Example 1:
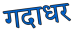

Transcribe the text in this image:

गदाधर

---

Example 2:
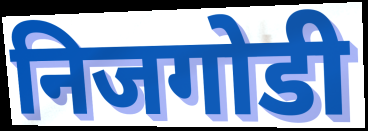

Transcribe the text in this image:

निजगोडी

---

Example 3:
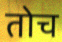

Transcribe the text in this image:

तोच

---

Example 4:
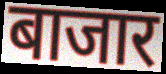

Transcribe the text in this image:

बाजार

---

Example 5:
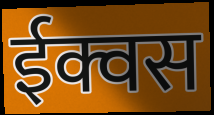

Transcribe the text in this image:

ईक्‍वस